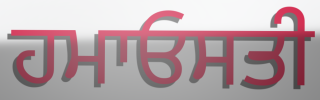
ਹਮਾਓਸਤੀ